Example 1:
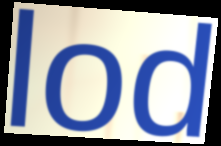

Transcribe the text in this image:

lod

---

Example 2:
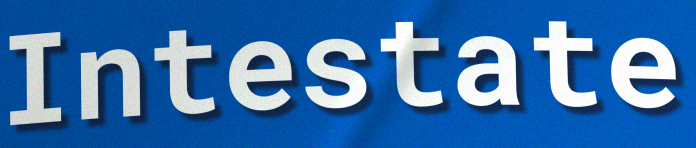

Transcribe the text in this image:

Intestate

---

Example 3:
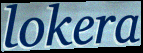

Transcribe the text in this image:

lokera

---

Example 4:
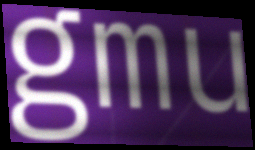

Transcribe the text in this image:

gmu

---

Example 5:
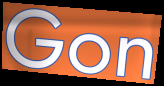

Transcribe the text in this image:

Gon